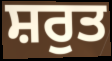
ਸ਼ਰੁਤ